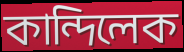
কান্দিলেক